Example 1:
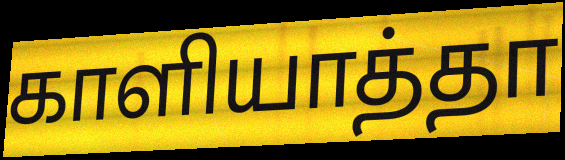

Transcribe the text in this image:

காளியாத்தா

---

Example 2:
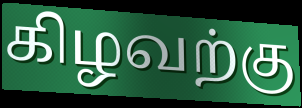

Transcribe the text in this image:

கிழவற்கு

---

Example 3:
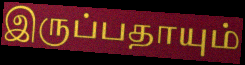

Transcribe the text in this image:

இருப்பதாயும்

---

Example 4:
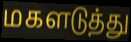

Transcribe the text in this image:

மகளடுத்து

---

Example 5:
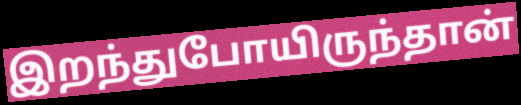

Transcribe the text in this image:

இறந்துபோயிருந்தான்